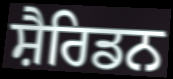
ਸ਼ੈਰਿਡਨ